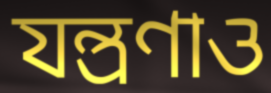
যন্ত্রণাও